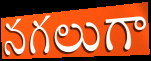
నగలుగా